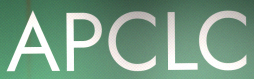
APCLC